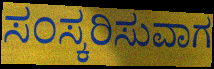
ಸಂಸ್ಕರಿಸುವಾಗ